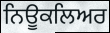
ਨਿਊਕਲਿਅਰ